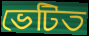
ভেটিত